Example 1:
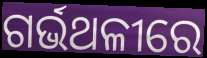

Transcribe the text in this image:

ଗର୍ଭଥଳୀରେ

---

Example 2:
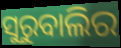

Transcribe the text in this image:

ସୁରୁବାଲିର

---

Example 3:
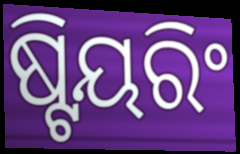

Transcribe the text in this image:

ଷ୍ଟିୟରିଂ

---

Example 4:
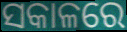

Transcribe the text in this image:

ସକାଳରେ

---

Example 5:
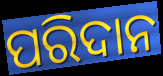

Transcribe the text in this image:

ପରିଦାନ